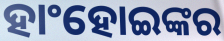
ହାଂହୋଇଙ୍କର